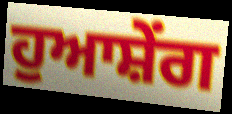
ਹੁਆਸ਼ੇਂਗ